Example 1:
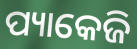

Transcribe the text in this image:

ପ୍ୟାକେଜି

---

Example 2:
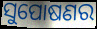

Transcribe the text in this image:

ସୁପୋଷଣର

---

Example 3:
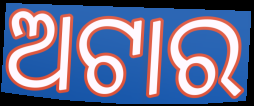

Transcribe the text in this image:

ଅଟାର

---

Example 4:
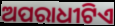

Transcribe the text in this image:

ଅପରାଧୀଟିଏ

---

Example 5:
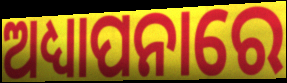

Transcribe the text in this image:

ଅଧ୍ୟାପନାରେ